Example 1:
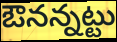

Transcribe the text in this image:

ఔనన్నట్టు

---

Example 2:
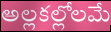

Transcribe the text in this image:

అల్లకల్లోలమే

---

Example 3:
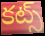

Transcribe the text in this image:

కట్స్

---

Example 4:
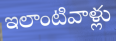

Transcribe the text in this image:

ఇలాంటివాళ్లు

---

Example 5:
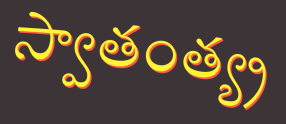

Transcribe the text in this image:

స్వాతంత్య్ర